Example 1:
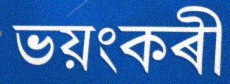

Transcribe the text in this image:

ভয়ংকৰী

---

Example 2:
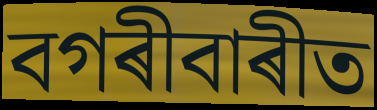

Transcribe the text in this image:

বগৰীবাৰীত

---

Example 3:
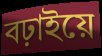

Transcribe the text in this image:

বঢ়াইয়ে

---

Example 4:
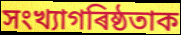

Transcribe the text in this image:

সংখ্যাগৰিষ্ঠতাক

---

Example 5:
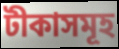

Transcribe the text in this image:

টীকাসমূহ